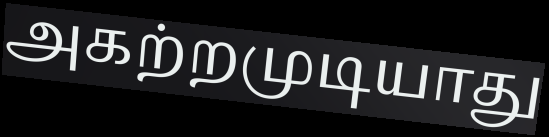
அகற்றமுடியாது